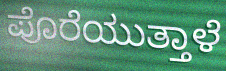
ಪೊರೆಯುತ್ತಾಳೆ